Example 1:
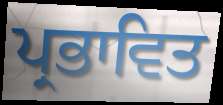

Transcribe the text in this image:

ਪ੍ਰਭਾਵਿਤ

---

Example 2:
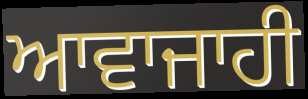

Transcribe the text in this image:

ਆਵਾਜਾਹੀ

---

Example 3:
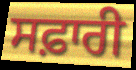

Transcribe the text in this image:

ਸਫ਼ਾਰੀ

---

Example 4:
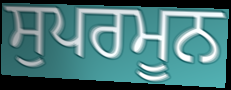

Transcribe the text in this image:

ਸੁਪਰਮੂਨ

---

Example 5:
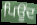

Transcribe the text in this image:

ਪਿਊਂਦ